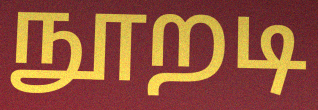
நூறடி